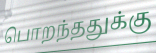
பொறந்ததுக்கு